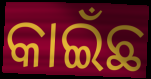
କାଇଁଛ